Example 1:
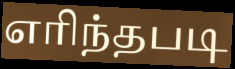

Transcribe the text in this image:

எரிந்தபடி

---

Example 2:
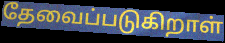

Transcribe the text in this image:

தேவைப்படுகிறாள்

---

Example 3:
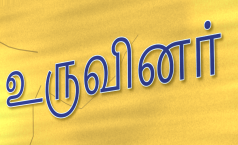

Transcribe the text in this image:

உருவினர்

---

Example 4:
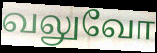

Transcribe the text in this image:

வலுவோ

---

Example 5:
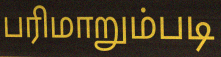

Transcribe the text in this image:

பரிமாறும்படி